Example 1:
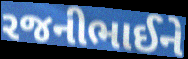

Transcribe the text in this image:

રજનીભાઈને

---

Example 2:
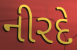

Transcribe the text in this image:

નીરદે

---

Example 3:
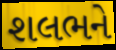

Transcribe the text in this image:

શલભને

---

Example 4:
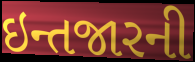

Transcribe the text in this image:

ઇન્તજારની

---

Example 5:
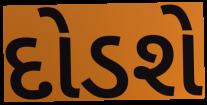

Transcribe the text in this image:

દોડશે